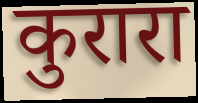
कुरारा